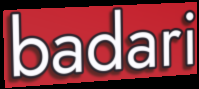
badari